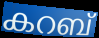
കറബ്